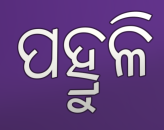
ପହ୍ରୁଳି